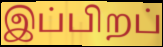
இப்பிறப்